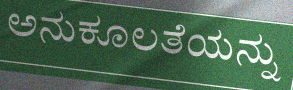
ಅನುಕೂಲತೆಯನ್ನು